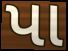
પા